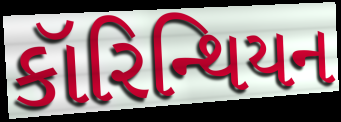
કૉરિન્થિયન